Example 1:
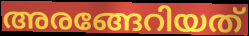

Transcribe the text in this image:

അരങ്ങേറിയത്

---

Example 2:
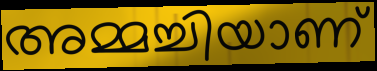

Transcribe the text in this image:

അമ്മച്ചിയാണ്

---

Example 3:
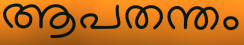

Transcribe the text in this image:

ആപതന്തം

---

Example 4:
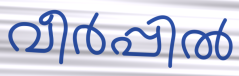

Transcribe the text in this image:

വീർപ്പിൽ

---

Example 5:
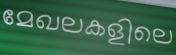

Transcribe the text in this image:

മേഖലകളിലെ